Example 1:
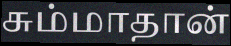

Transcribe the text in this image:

சும்மாதான்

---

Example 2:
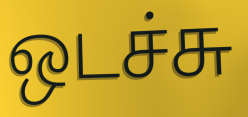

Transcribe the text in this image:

ஒடச்சு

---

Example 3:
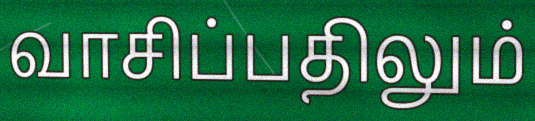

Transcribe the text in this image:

வாசிப்பதிலும்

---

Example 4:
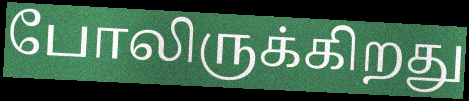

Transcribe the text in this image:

போலிருக்கிறது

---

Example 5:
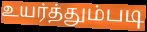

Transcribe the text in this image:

உயர்த்தும்படி